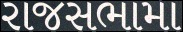
રાજસભામા